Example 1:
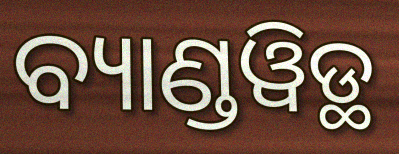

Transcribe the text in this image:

ବ୍ୟାଣ୍ଡୱିଡ୍ଥ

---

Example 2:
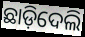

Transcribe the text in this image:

ଛାଡ଼ିଦେଲି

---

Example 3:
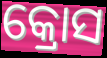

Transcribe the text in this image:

କ୍ରୋସ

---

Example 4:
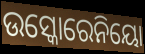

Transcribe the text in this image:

ଉସ୍କୋରେନିୟୋ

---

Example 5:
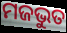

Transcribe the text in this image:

ମଜଭୁତ